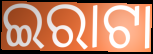
ଇରାଟା